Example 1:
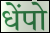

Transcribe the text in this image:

धेंपो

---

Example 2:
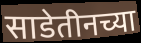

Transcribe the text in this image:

साडेतीनच्या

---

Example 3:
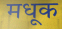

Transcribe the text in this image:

मधूक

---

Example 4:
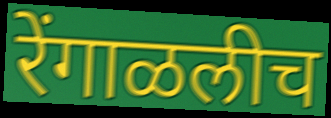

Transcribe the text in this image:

रेंगाळलीच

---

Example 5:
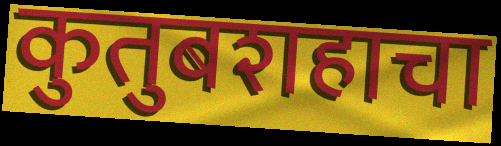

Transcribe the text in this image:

कुतुबशहाचा